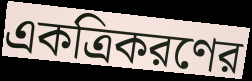
একত্রিকরণের